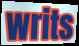
writs